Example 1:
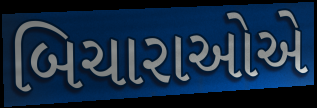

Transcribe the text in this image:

બિચારાઓએ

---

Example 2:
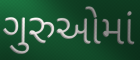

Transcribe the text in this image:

ગુરુઓમાં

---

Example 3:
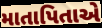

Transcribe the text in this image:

માતાપિતાએ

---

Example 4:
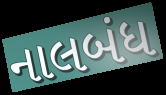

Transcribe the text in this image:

નાલબંધ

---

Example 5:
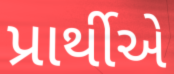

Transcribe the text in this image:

પ્રાર્થીએ